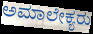
ಅಮಾಲೇಕ್ಯರು